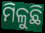
ମିଳୁଛି